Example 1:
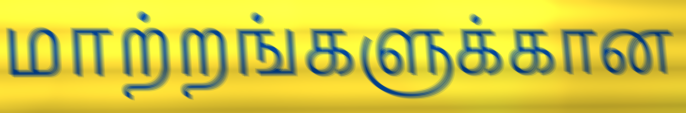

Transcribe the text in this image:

மாற்றங்களுக்கான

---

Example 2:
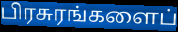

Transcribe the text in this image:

பிரசுரங்களைப்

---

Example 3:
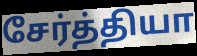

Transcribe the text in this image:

சேர்த்தியா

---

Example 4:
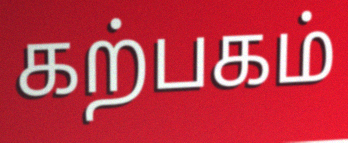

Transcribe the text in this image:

கற்பகம்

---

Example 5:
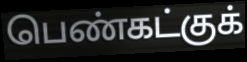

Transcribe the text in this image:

பெண்கட்குக்